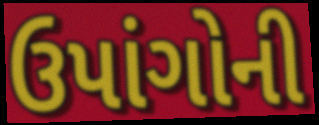
ઉપાંગોની